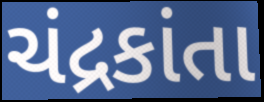
ચંદ્રકાંતા